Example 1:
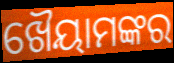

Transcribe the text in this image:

ଖୈୟାମଙ୍କର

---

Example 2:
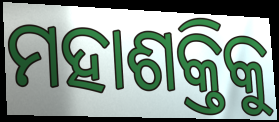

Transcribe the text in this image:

ମହାଶକ୍ତିକୁ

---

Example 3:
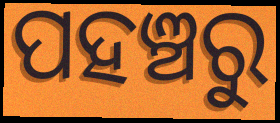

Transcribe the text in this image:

ପହଞ୍ଚରୁ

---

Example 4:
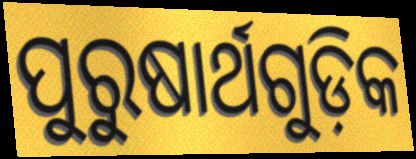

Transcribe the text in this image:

ପୁରୁଷାର୍ଥଗୁଡ଼ିକ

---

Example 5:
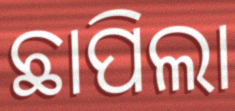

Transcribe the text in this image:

ଛାପିଲା